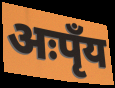
अःपृँय